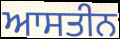
ਆਸਤੀਨ